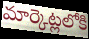
మార్కెట్లలోకి